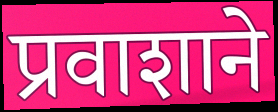
प्रवाशाने